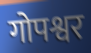
गोपश्वर